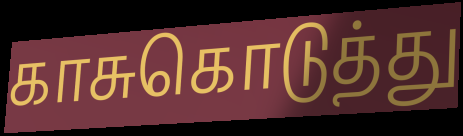
காசுகொடுத்து